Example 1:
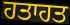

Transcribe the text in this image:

ਹਤਾਹਤ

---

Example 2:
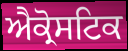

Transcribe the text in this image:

ਐਕ੍ਰੋਸਟਿਕ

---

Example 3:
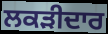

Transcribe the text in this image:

ਲਕੜੀਦਾਰ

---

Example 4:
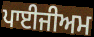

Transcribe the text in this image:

ਪਾਈਜੀਅਮ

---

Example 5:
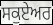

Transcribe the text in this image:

ਸਕੁਏਅਰ